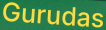
Gurudas